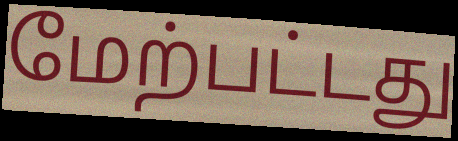
மேற்பட்டது